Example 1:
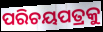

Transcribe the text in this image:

ପରିଚୟପତ୍ରକୁ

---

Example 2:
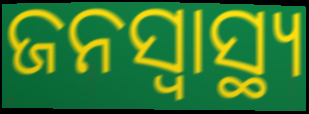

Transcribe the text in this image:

ଜନସ୍ବାସ୍ଥ୍ୟ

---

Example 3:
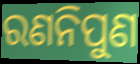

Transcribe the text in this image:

ରଣନିପୁଣ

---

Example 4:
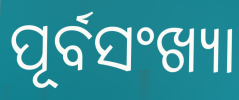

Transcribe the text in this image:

ପୂର୍ବସଂଖ୍ୟା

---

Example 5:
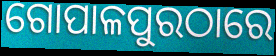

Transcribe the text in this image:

ଗୋପାଳପୁରଠାରେ